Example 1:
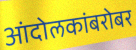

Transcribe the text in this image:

आंदोलकांबरोबर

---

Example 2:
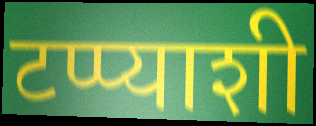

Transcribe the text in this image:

टप्प्याशी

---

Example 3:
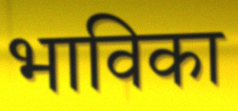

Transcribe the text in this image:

भाविका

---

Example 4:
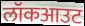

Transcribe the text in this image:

लॉकआउट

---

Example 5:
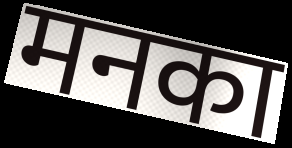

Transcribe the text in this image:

मनका